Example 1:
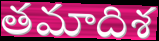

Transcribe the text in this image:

తమాదిశ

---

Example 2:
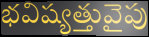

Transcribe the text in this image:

భవిష్యత్తువైపు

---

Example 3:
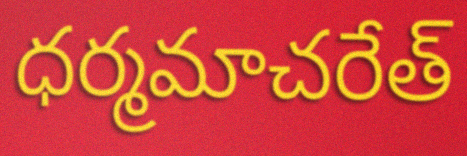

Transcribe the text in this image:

ధర్మమాచరేత్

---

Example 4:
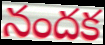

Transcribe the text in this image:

నందక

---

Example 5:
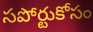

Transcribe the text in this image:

సపోర్టుకోసం